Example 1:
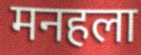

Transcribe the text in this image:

मनहला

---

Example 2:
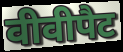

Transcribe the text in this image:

वीवीपैट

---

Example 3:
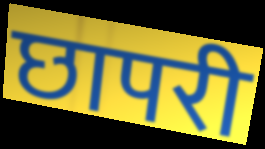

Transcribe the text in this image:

छापरी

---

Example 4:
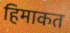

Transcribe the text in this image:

हिमाकत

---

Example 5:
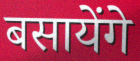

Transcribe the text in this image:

बसायेंगे